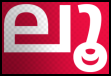
ലൂ